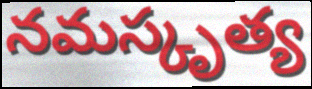
నమస్కృత్య